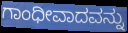
ಗಾಂಧೀವಾದವನ್ನು